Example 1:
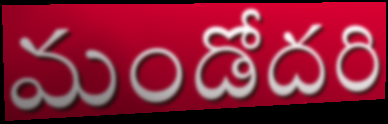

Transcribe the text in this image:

మండోదరి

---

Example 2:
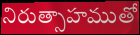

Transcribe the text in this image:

నిరుత్సాహముతో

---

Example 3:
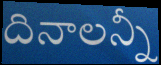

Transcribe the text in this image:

దినాలన్నీ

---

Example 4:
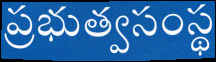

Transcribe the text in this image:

ప్రభుత్వసంస్థ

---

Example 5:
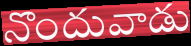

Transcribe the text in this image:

నొందువాడు